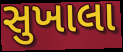
સુખાલા